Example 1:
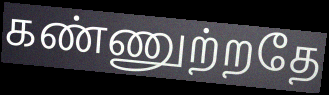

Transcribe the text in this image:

கண்ணுற்றதே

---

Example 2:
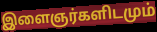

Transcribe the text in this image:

இளைஞர்களிடமும்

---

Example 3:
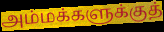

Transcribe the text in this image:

அம்மக்களுக்குத்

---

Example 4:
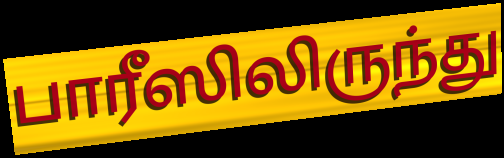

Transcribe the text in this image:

பாரீஸிலிருந்து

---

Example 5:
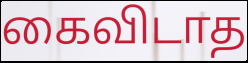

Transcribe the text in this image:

கைவிடாத